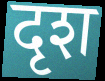
दृश